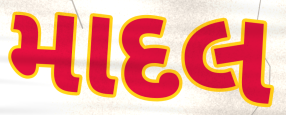
માદલ